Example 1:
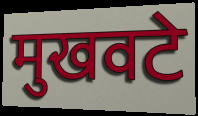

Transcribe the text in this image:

मुखवटे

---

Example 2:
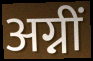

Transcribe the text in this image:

अग्नीं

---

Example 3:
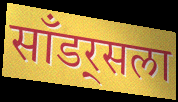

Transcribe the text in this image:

साँडर्सला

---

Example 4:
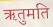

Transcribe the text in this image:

ऋतुमति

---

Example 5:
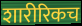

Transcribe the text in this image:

शारीरिकच